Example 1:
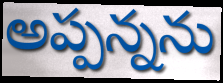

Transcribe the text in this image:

అప్పన్నను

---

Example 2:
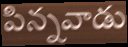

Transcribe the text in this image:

పిన్నవాడు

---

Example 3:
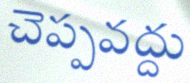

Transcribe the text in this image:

చెప్పవద్దు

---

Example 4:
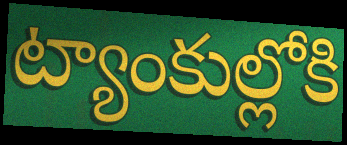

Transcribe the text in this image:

ట్యాంకుల్లోకి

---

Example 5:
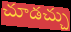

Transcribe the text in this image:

చూడచ్చు